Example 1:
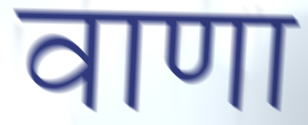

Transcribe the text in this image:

वाणा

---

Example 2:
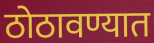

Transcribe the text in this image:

ठोठावण्यात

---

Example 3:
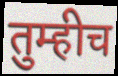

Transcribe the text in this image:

तुम्हीच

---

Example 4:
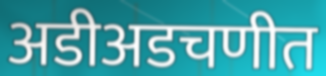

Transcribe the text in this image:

अडीअडचणीत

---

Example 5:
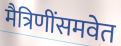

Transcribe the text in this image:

मैत्रिणींसमवेत